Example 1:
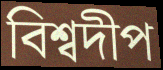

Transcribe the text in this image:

বিশ্বদীপ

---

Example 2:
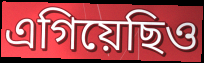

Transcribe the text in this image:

এগিয়েছিও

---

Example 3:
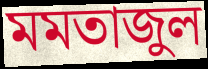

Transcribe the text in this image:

মমতাজুল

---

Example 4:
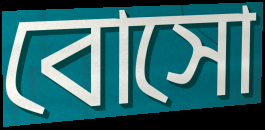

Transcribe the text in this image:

বোসো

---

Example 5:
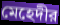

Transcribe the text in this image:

মেহেদীর